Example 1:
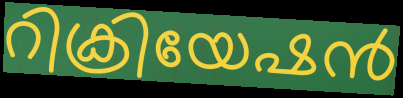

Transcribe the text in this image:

റിക്രിയേഷൻ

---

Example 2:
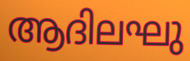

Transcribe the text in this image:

ആദിലഘു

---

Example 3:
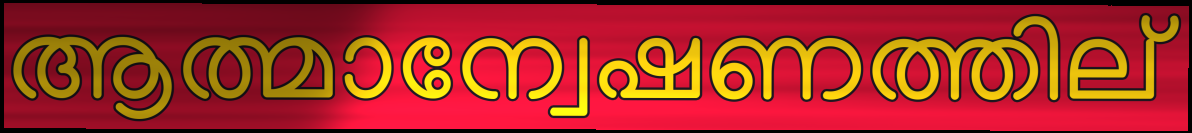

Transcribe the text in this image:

ആത്മാന്വേഷണത്തില്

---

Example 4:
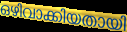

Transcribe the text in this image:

ഒഴിവാക്കിയതായി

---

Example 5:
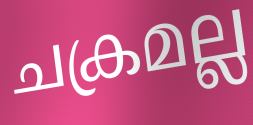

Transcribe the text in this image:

ചക്രമല്ല